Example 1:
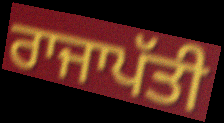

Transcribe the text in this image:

ਰਾਜਾਪੱਤੀ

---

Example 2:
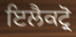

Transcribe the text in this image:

ਇਲੈਕਟ੍ਰੋ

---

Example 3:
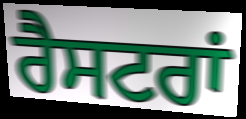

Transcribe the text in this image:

ਰੈਸਟਰਾਂ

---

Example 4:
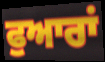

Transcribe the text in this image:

ਫੁਆਰਾਂ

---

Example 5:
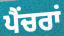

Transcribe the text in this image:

ਪੈਂਚਰਾਂ